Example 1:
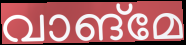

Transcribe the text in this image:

വാങ്മേ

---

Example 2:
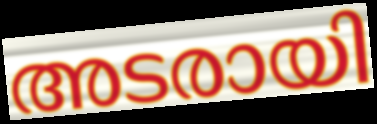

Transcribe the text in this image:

അടരായി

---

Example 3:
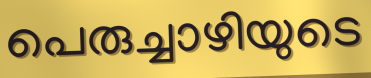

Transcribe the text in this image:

പെരുച്ചാഴിയുടെ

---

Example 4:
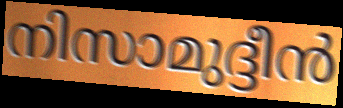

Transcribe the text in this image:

നിസാമുദ്ദീൻ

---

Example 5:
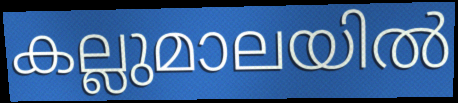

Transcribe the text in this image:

കല്ലുമാലയിൽ